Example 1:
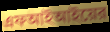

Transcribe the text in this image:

এফআইআইয়ের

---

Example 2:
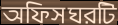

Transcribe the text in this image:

অফিসঘরটি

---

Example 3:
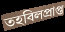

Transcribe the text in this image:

তহবিলপ্রাপ্ত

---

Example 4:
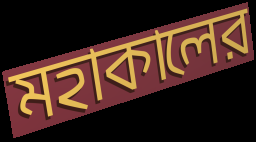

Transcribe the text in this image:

মহাকালের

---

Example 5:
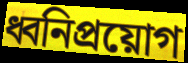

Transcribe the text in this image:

ধ্বনিপ্রয়োগ